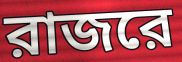
রাজরে